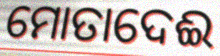
ମୋତାଦେଈ